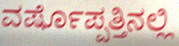
ವರ್ಷೊಪ್ಪತ್ತಿನಲ್ಲಿ